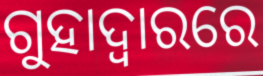
ଗୁହାଦ୍ଵାରରେ